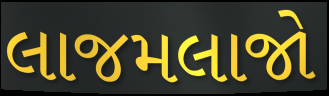
લાજમલાજો